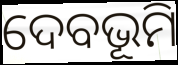
ଦେବଭୂମି